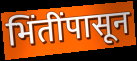
भिंतींपासून